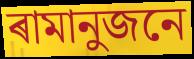
ৰামানুজনে